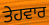
ਤੇਹਵਾਰ